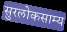
सुरलोकसाम्य